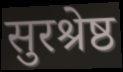
सुरश्रेष्ठ